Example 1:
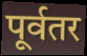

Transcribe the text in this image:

पूर्वतर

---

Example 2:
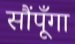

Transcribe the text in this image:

सौंपूँगा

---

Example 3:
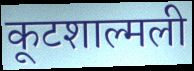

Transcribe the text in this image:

कूटशाल्मली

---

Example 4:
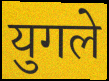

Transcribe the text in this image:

युगले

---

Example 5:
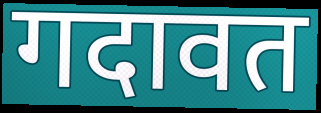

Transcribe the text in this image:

गदावत